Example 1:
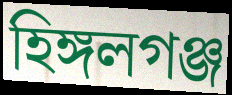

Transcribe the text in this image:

হিঙ্গলগঞ্জ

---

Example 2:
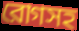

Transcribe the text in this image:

রোগসহ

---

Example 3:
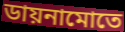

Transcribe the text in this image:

ডায়নামোতে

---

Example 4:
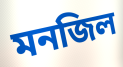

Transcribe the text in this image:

মনজিল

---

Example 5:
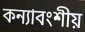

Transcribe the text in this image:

কন্যাবংশীয়